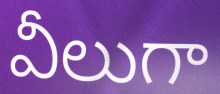
వీలుగా